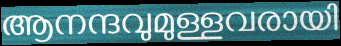
ആനന്ദവുമുള്ളവരായി